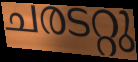
ചരടറ്റു